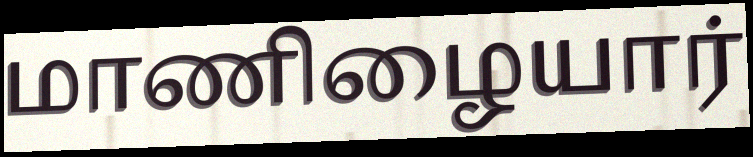
மாணிழையார்